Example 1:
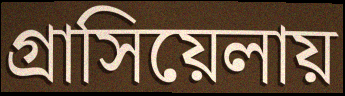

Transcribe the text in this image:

গ্রাসিয়েলায়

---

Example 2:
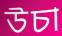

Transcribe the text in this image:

উচা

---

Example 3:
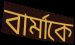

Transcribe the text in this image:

বার্মাকে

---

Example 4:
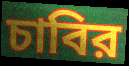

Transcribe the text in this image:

চাবির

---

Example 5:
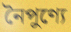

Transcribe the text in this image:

নৈপুণ্যে